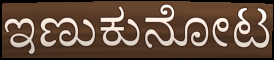
ಇಣುಕುನೋಟ